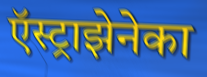
ऍस्ट्राझेनेका